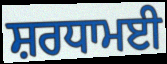
ਸ਼ਰਧਾਮਈ